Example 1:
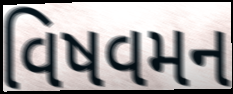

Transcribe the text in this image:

વિષવમન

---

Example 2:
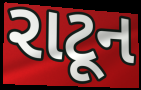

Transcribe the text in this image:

રાટૂન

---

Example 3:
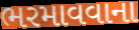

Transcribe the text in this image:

ભરમાવવાના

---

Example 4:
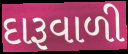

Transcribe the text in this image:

દારૂવાળી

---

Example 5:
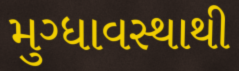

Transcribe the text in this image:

મુગ્ધાવસ્થાથી